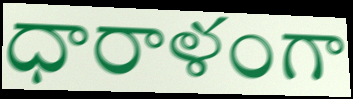
ధారాళంగా